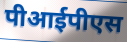
पीआईपीएस